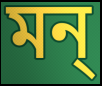
মন্